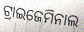
ଟ୍ରାଇଜେମିନାଲ